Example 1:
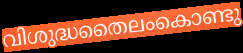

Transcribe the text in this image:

വിശുദ്ധതൈലംകൊണ്ടു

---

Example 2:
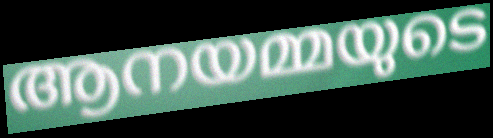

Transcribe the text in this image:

ആനയമ്മയുടെ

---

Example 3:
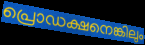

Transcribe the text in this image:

പ്രൊഡക്ഷനെങ്കിലും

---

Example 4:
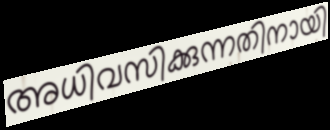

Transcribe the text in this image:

അധിവസിക്കുന്നതിനായി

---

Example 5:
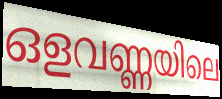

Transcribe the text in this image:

ഒളവണ്ണയിലെ